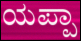
ಯಪ್ಪಾ